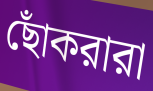
ছোঁকরারা